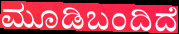
ಮೂಡಿಬಂದಿದೆ